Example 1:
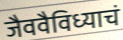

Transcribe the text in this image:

जैववैविध्याचं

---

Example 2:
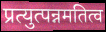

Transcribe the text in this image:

प्रत्युत्पन्नमतित्व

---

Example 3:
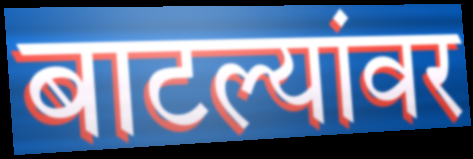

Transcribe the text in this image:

बाटल्यांवर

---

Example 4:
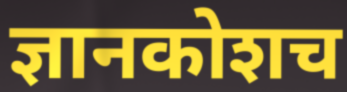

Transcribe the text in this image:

ज्ञानकोशच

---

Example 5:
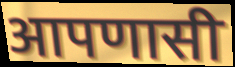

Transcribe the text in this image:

आपणासी